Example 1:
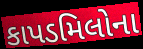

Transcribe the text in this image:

કાપડમિલોના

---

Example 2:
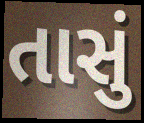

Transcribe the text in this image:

તાસું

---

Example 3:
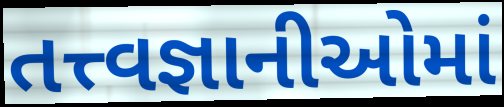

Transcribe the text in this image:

તત્ત્વજ્ઞાનીઓમાં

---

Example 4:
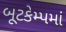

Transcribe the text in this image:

બૂટકેમ્પમાં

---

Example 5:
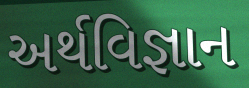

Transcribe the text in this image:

અર્થવિજ્ઞાન